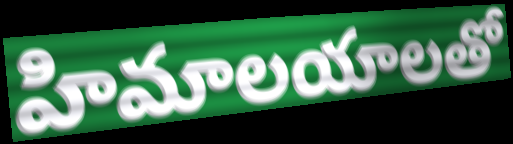
హిమాలయాలతో